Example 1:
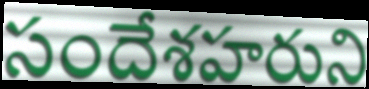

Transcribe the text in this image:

సందేశహరుని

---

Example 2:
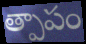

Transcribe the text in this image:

త్పాపం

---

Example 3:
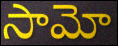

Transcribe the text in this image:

సామో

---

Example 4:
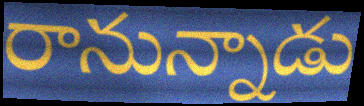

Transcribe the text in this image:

రానున్నాడు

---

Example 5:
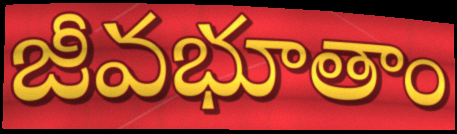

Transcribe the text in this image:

జీవభూతాం